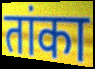
तांका